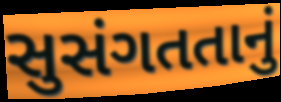
સુસંગતતાનું